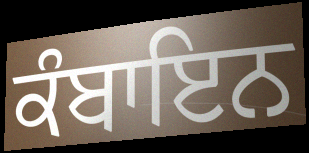
ਕੰਬਾਇਨ